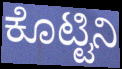
ಕೊಟ್ಟಿನಿ